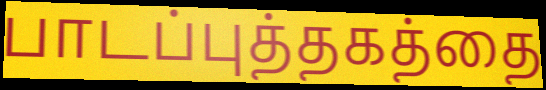
பாடப்புத்தகத்தை